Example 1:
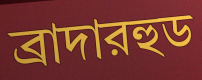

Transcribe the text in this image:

ব্রাদারহুড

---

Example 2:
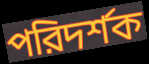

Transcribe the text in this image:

পরিদর্শক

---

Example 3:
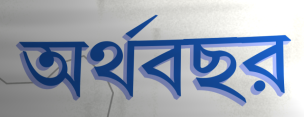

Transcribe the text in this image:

অর্থবছর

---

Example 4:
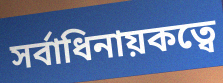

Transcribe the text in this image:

সর্বাধিনায়কত্বে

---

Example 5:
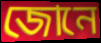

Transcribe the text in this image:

জোনে